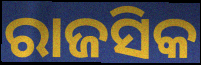
ରାଜସିକ